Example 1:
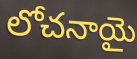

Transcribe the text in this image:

లోచనాయై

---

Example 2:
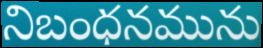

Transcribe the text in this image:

నిబంధనమును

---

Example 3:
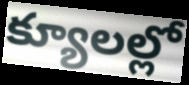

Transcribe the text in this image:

క్యూలల్లో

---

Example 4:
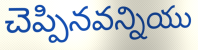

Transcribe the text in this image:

చెప్పినవన్నియు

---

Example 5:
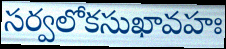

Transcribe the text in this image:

సర్వలోకసుఖావహః